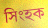
সিংহক